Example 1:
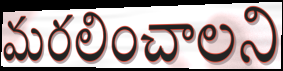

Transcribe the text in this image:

మరలించాలని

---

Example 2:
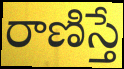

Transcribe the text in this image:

రాణిస్తే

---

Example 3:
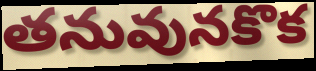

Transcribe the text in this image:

తనువునకొక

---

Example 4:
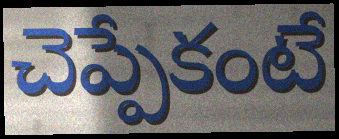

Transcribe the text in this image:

చెప్పేకంటే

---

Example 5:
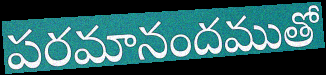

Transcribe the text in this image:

పరమానందముతో